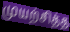
முயற்சித்த